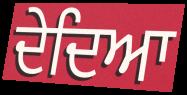
ਦੇਦਿਆ